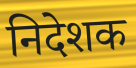
निदेशक